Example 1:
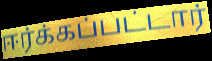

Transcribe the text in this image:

ஈர்க்கப்பட்டார்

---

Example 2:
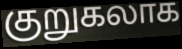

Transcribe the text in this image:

குறுகலாக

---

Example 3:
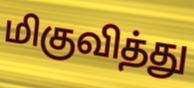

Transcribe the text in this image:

மிகுவித்து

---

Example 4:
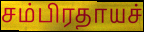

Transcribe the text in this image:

சம்பிரதாயச்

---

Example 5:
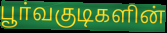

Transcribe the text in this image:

பூர்வகுடிகளின்